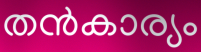
തൻകാര്യം